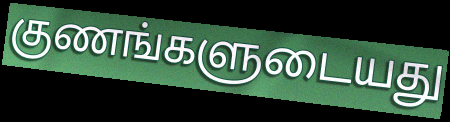
குணங்களுடையது